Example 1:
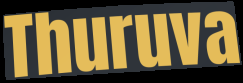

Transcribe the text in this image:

Thuruva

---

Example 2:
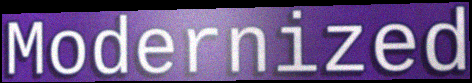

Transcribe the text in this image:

Modernized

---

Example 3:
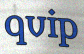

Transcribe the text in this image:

quip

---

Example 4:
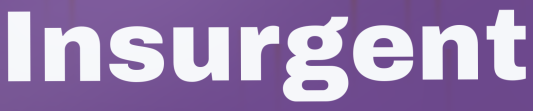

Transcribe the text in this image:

Insurgent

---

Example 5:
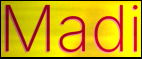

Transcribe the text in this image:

Madi